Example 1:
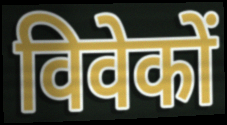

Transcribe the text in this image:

विवेकों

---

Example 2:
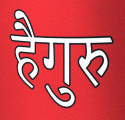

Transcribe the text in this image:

हैगुरु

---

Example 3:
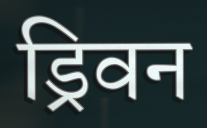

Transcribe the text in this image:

ड्रिवन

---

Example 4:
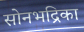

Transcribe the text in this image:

सोनभद्रिका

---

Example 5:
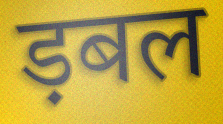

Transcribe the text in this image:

ड़बल